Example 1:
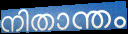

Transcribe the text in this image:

നിതാന്തം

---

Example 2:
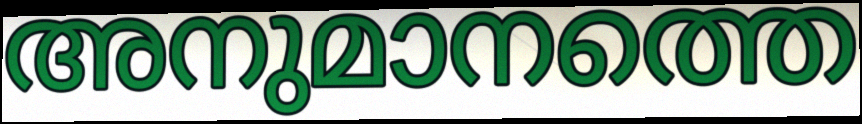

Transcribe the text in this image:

അനുമാനത്തെ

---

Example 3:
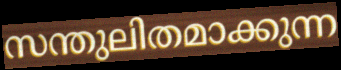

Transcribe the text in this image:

സന്തുലിതമാക്കുന്ന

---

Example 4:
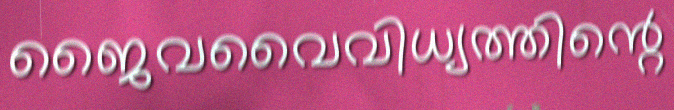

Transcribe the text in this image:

ജൈവവൈവിധ്യത്തിന്റെ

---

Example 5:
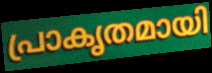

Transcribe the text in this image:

പ്രാകൃതമായി